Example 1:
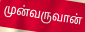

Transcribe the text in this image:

முன்வருவான்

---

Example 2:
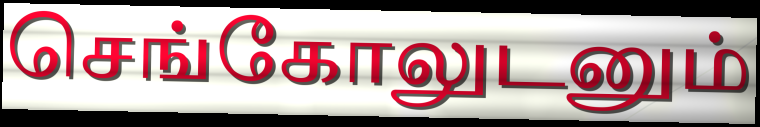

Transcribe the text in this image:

செங்கோலுடனும்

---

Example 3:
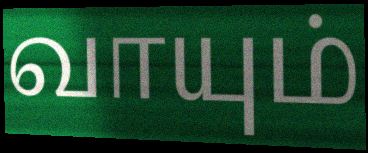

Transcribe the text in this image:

வாயும்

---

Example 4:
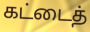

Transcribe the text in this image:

கட்டைத்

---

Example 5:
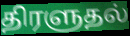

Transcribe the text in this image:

திரளுதல்